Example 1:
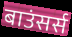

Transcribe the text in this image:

बाउंसर्स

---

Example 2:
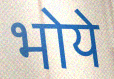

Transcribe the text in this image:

भोये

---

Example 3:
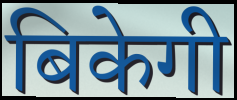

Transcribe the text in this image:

बिकेगी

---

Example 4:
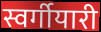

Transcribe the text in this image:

स्वर्गीयारी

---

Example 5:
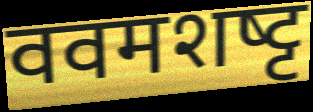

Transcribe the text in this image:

ववमशष्ट्ट